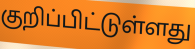
குறிப்பிட்டுள்ளது